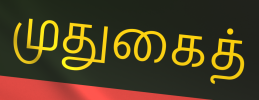
முதுகைத்